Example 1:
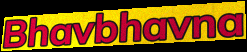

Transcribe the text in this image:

Bhavbhavna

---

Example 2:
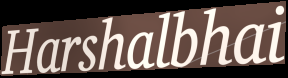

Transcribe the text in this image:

Harshalbhai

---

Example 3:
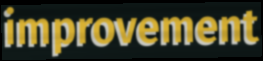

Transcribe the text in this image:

improvement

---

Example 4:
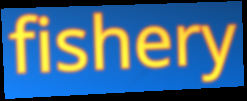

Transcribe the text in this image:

fishery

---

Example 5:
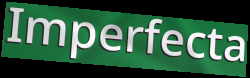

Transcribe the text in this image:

Imperfecta